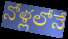
నోళ్లలోనే